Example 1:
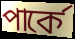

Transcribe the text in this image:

পার্কে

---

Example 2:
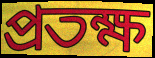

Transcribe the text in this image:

প্রতক্ষ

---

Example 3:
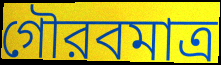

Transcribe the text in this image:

গৌরবমাত্র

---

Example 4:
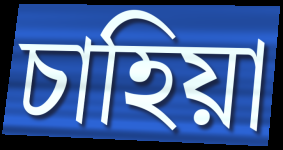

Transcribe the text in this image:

চাহিয়া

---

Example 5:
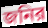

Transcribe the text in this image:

জনির